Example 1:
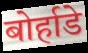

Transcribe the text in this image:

बोर्हाडे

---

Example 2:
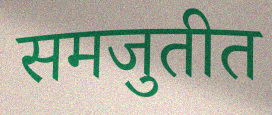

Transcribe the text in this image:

समजुतीत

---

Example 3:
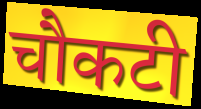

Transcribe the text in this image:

चौकटी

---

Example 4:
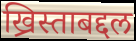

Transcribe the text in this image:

ख्रिस्ताबद्दल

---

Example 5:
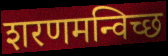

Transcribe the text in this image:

शरणमन्विच्छ